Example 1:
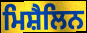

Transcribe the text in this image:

ਮਿਸ਼ੈਲਿਨ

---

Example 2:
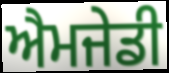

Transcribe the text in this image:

ਐਮਜੇਡੀ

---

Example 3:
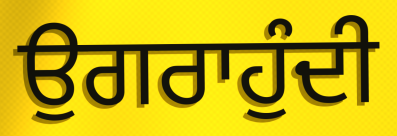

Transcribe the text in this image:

ਉਗਰਾਹੁੰਦੀ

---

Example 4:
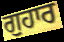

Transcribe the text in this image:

ਗੁਹਾਰ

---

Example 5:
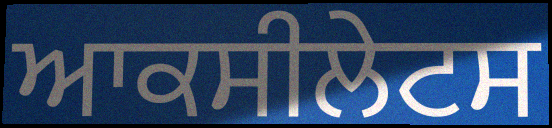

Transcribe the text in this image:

ਆਕਸੀਲੇਟਸ